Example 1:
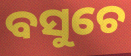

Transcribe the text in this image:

ବସୁଚେ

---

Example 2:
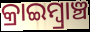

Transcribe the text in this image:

କ୍ରାଇମ୍ବ୍ରାଞ୍ଚ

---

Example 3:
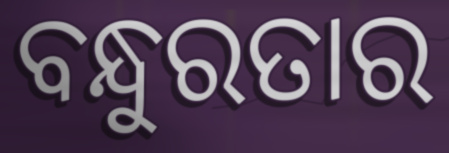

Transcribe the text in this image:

ବନ୍ଧୁରତାର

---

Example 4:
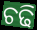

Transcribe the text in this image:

ଚଢି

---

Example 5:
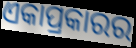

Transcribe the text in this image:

ଏକାପ୍ରକାରର